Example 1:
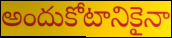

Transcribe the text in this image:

అందుకోటానికైనా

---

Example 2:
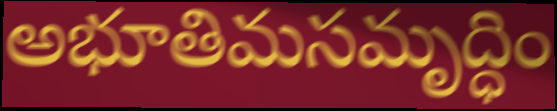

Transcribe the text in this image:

అభూతిమసమృద్ధిం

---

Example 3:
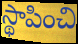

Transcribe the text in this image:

స్థాపించి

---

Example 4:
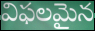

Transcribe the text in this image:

విఫలమైన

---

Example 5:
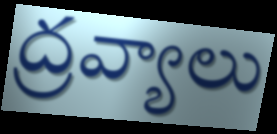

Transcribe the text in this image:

ద్రవ్యాలు